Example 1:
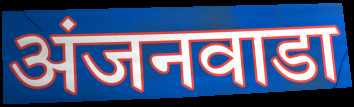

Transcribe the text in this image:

अंजनवाडा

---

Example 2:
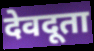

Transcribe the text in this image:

देवदूता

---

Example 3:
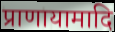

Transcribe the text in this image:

प्राणायामादि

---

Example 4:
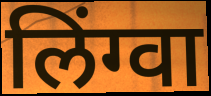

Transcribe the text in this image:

लिंग्वा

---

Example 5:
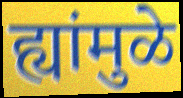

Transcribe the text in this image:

ह्यांमुळे